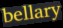
bellary